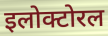
इलोक्टोरल